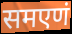
समएणं